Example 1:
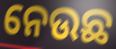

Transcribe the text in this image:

ନେଉଛ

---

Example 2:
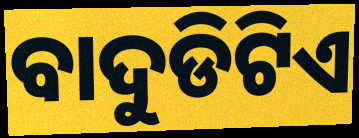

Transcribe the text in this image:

ବାଦୁଡିଟିଏ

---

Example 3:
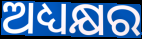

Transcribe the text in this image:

ଅଧ୍ୟକ୍ଷର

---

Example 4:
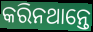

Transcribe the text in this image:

କରିନଥାନ୍ତେ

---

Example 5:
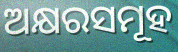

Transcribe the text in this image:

ଅକ୍ଷରସମୂହ